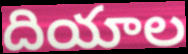
దియాల